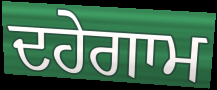
ਦਹੇਗਾਮ